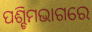
ପଶ୍ଚିମଭାଗରେ